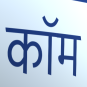
कॉम